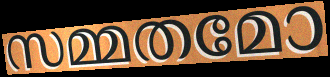
സമ്മതമോ